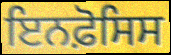
ਇਨਫ਼ੋਸਿਸ